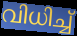
വിധിച്ച്